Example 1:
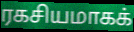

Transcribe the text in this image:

ரகசியமாகக்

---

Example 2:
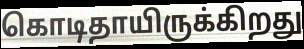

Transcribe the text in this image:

கொடிதாயிருக்கிறது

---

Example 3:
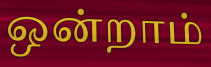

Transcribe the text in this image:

ஒன்றாம்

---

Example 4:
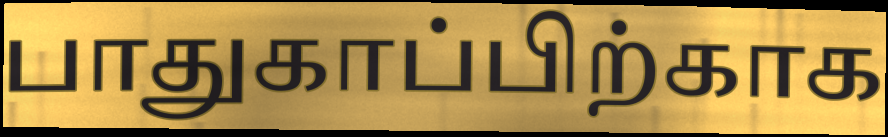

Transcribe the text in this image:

பாதுகாப்பிற்காக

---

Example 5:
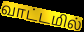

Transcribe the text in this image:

வாட்டமில்